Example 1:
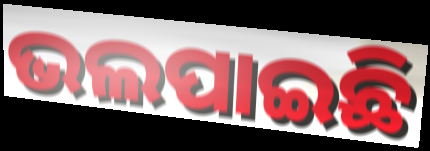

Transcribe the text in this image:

ଭଲପାଇଛି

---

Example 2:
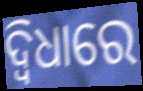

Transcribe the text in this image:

ଦ୍ଵିଧାରେ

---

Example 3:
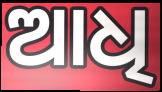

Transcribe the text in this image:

ଆଧି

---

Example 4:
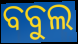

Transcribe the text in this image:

ବବୁଲ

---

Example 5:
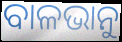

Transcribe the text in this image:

ବାଳଭାନୁ